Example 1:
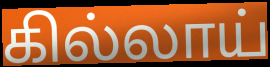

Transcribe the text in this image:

கில்லாய்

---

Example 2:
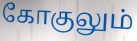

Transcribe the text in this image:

கோகுலும்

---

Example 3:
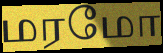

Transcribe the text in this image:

மரமோ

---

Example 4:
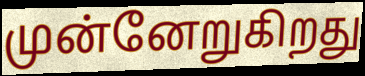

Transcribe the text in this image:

முன்னேறுகிறது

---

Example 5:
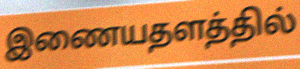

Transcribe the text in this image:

இணையதளத்தில்